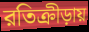
রতিক্রীড়ায়